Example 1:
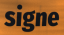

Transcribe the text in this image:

signe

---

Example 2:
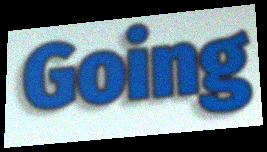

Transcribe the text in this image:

Going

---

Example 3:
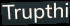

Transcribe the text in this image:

Trupthi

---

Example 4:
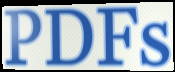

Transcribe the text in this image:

PDFs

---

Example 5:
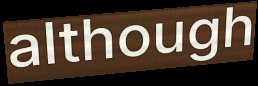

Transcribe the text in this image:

although